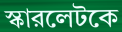
স্কারলেটকে